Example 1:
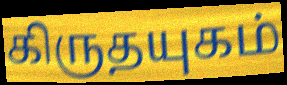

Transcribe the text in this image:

கிருதயுகம்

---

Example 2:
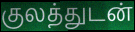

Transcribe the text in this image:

குலத்துடன்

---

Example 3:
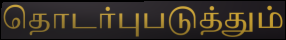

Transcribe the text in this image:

தொடர்புபடுத்தும்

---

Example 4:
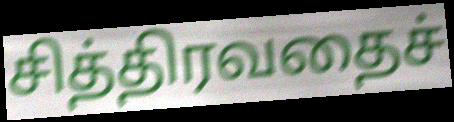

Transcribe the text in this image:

சித்திரவதைச்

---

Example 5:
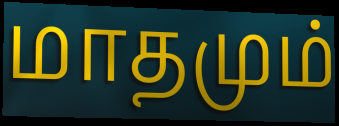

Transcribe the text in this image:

மாதமும்